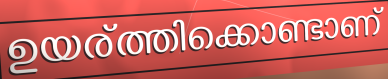
ഉയര്ത്തിക്കൊണ്ടാണ്